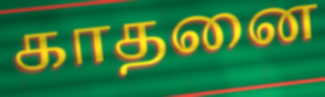
காதனை